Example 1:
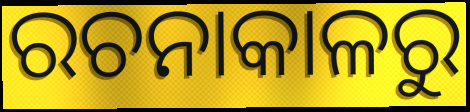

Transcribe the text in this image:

ରଚନାକାଳରୁ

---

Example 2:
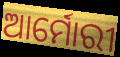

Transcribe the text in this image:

ଆର୍ମୋରୀ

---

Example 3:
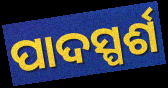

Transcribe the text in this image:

ପାଦସ୍ପର୍ଶ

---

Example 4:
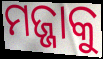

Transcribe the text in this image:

ମଜ୍ଜାକୁ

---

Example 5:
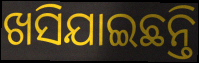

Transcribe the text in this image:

ଖସିଯାଇଛନ୍ତି